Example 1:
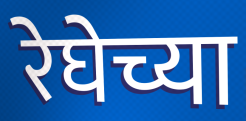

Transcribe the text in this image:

रेघेच्या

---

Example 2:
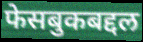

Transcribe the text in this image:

फेसबुकबद्दल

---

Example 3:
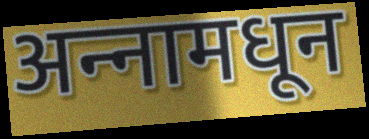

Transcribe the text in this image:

अन्नामधून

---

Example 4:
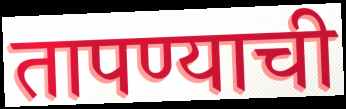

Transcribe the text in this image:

तापण्याची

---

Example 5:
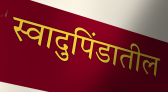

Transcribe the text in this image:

स्वादुपिंडातील